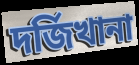
দর্জিখানা